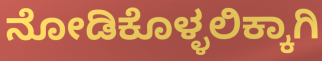
ನೋಡಿಕೊಳ್ಳಲಿಕ್ಕಾಗಿ